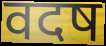
वदष